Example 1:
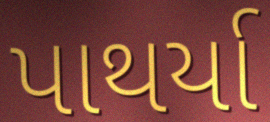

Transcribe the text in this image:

પાથર્યા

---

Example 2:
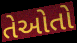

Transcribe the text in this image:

તેઓતો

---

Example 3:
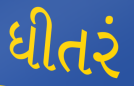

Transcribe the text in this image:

ધીતરં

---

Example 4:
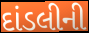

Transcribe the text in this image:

દાંડલીની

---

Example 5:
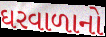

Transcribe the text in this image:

ઘરવાળાનો